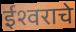
ईश्वराचे